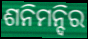
ଶନିମନ୍ଦିର